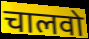
चालवो